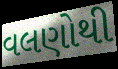
વલણોથી